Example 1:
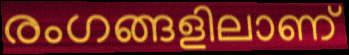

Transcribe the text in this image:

രംഗങ്ങളിലാണ്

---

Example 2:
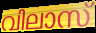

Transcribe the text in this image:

വിലാസ്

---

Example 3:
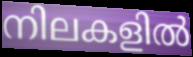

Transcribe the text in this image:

നിലകളിൽ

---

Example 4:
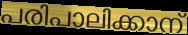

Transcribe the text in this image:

പരിപാലിക്കാന്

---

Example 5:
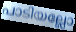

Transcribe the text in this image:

പാടിയല്ലോ